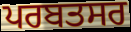
ਪਰਬਤਸਰ